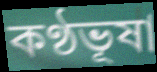
কণ্ঠভূষা